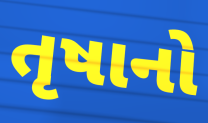
તૃષાનો